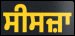
ਸੀਸਜ਼ਾ